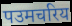
पउमचरिय